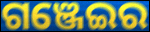
ଗଞ୍ଜେଇର